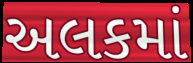
અલકમાં